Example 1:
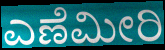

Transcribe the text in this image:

ಎಣೆಮೀರಿ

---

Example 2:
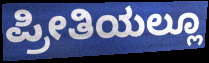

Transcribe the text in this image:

ಪ್ರೀತಿಯಲ್ಲೂ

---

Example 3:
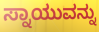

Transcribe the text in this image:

ಸ್ನಾಯುವನ್ನು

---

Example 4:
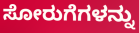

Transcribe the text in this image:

ಸೋರುಗೆಗಳನ್ನು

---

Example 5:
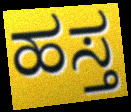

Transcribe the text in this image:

ಹಸ್ತ